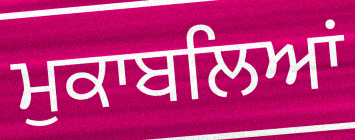
ਮੁਕਾਬਲਿਆਂ